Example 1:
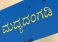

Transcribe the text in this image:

ಮದ್ಯದಂಗಡಿ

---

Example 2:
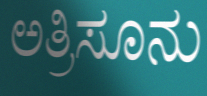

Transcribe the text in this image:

ಅತ್ರಿಸೂನು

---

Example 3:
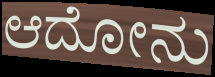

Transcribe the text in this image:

ಆದೋನು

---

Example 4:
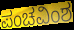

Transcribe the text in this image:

ಪಂಚವಿಂಶ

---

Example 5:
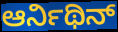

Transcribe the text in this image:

ಆರ್ನಿಥಿನ್